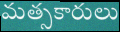
మత్సకారులు